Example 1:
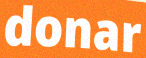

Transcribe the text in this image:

donar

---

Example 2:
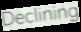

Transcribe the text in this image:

Declining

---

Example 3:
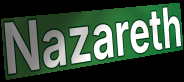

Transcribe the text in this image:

Nazareth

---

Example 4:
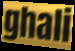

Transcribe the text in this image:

ghali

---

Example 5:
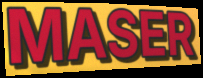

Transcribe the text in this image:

MASER